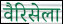
वैरिसेला